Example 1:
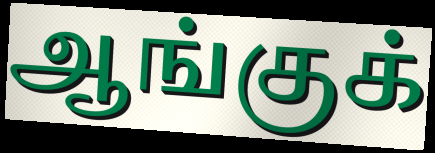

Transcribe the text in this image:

ஆங்குக்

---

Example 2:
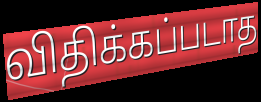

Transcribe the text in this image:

விதிக்கப்படாத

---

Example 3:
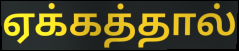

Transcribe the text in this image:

ஏக்கத்தால்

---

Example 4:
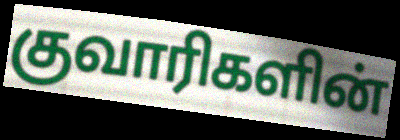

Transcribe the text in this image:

குவாரிகளின்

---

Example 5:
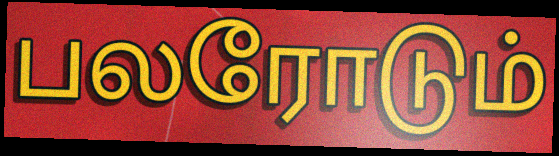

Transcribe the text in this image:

பலரோடும்